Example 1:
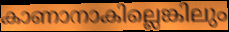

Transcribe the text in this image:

കാണാനാകില്ലെങ്കിലും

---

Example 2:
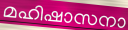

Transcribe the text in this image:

മഹിഷാസനാ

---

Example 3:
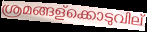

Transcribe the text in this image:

ശ്രമങ്ങള്ക്കൊടുവില്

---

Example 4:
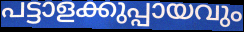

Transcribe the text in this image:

പട്ടാളക്കുപ്പായവും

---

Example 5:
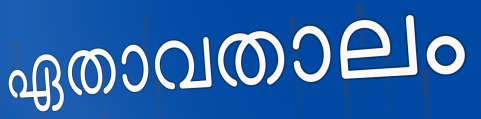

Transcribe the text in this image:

ഏതാവതാലം